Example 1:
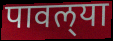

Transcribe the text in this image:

पावल्या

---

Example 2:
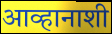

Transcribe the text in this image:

आव्हानाशी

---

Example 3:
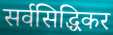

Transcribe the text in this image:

सर्वसिद्धिकर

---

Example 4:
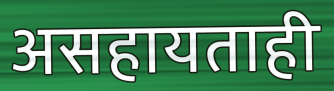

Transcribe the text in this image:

असहायताही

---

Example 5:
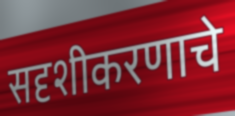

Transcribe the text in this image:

सदृशीकरणाचे